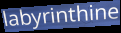
labyrinthine